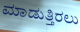
ಮಾಡುತ್ತಿರಲು